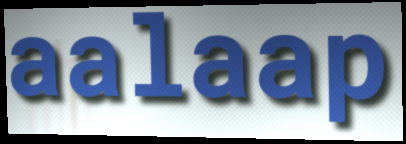
aalaap